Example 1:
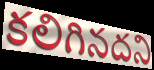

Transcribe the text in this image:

కలిగినదని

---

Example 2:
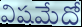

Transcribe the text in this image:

విషమేదో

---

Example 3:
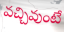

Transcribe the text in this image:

వచ్చివుంటే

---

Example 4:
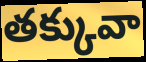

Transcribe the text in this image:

తక్కువా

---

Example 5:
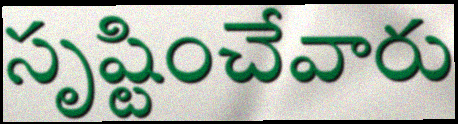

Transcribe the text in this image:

సృష్టించేవారు